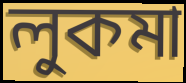
লুকমা